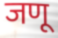
जणू